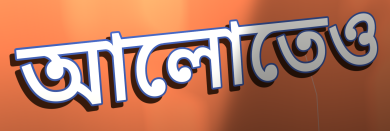
আলোতেও